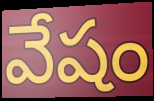
వేషం